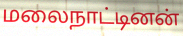
மலைநாட்டினன்